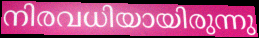
നിരവധിയായിരുന്നു